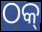
ଠକ୍